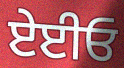
ਏਈਓ